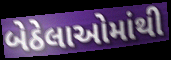
બેઠેલાઓમાંથી